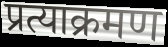
प्रत्याक्रमण